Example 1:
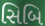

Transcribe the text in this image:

સિબિ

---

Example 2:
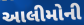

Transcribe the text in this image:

આલીમોની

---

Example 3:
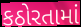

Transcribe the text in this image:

કઠોરતામાં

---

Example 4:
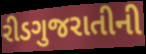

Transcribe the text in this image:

રીડગુજરાતીની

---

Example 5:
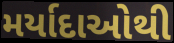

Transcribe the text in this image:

મર્યાદાઓથી